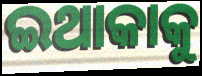
ଇଥାକାକୁ